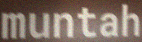
muntah